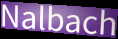
Nalbach